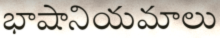
భాషానియమాలు